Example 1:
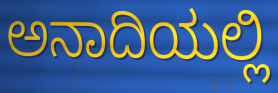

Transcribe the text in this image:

ಅನಾದಿಯಲ್ಲಿ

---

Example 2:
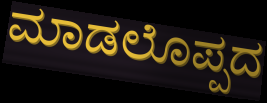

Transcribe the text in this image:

ಮಾಡಲೊಪ್ಪದ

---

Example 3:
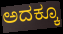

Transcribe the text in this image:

ಅದಕ್ಕೂ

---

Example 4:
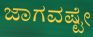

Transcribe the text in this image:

ಜಾಗವಷ್ಟೇ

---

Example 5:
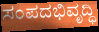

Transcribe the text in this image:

ಸಂಪದಭಿವೃದ್ಧಿ